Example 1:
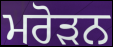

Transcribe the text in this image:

ਮਰੋੜਨ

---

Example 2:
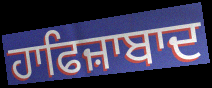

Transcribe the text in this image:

ਹਾਫਿਜ਼ਾਬਾਦ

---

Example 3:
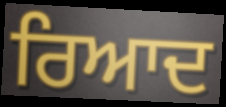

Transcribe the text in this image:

ਰਿਆਦ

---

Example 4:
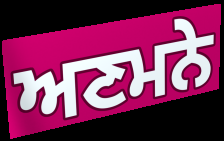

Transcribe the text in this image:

ਅਣਮਨੇ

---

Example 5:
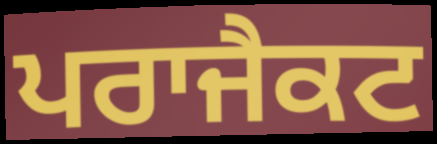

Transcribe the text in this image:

ਪਰਾਜੈਕਟ